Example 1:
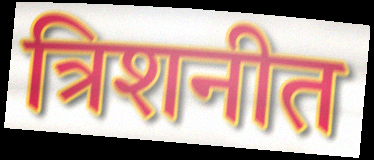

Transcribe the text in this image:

त्रिशनीत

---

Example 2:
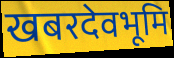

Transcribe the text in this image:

खबरदेवभूमि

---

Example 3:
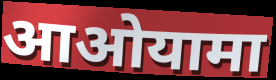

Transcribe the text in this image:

आओयामा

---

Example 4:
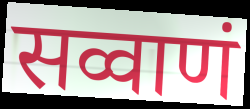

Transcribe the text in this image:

सव्वाणं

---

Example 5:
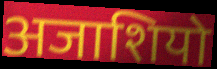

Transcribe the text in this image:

अजाशियो